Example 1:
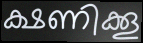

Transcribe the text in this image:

ക്ഷണിക്കൂ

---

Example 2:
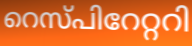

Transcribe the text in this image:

റെസ്പിറേറ്ററി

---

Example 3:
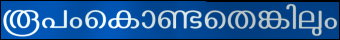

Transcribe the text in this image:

രൂപംകൊണ്ടതെങ്കിലും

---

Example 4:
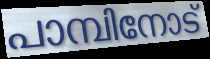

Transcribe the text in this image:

പാമ്പിനോട്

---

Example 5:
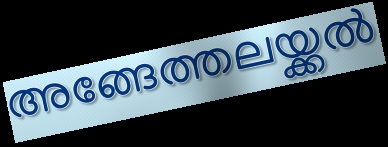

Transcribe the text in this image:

അങ്ങേത്തലയ്ക്കൽ